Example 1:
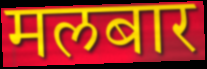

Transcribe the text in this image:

मलबार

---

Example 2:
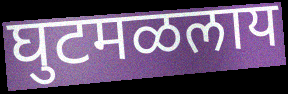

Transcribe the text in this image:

घुटमळलाय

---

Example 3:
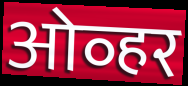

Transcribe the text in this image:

ओव्हर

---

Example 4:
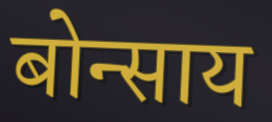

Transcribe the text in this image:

बोन्साय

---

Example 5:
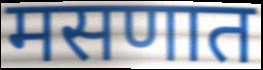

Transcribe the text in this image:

मसणात